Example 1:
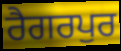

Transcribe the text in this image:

ਰੈਗਰਪੁਰ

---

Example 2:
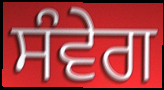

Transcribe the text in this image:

ਸੰਵੇਗ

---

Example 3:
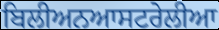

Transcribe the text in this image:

ਬਿਲੀਅਨਆਸਟਰੇਲੀਆ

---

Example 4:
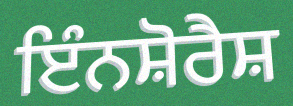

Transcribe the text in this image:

ਇੰਨਸ਼ੋਰੈਸ਼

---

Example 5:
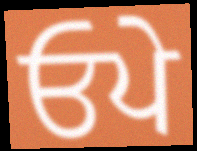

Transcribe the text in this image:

ਓਪੇ